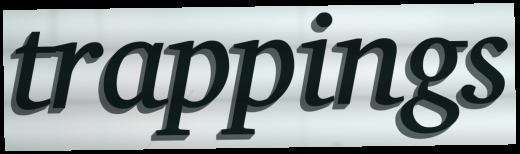
trappings